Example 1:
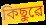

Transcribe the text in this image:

কিছুৱে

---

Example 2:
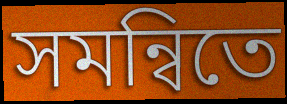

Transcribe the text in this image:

সমন্বিতে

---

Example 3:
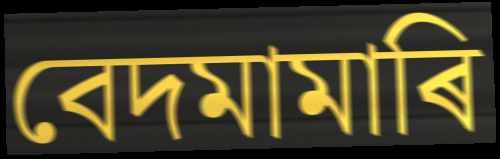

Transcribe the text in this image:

বেদমামাৰি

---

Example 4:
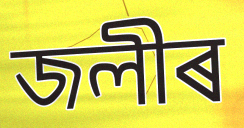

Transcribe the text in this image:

জলীৰ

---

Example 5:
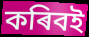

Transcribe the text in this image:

কৰিবই